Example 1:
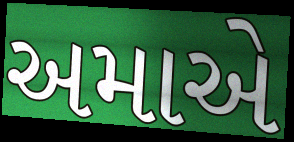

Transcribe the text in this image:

અમાએ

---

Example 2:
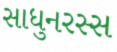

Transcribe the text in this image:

સાધુનરસ્સ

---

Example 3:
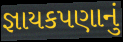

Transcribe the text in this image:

જ્ઞાયકપણાનું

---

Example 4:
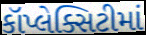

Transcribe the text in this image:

કૉપ્લેક્સિટીમાં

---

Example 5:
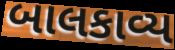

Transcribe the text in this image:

બાલકાવ્ય